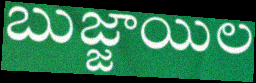
బుజ్జాయిల